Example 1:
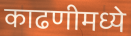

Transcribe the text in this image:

काढणीमध्ये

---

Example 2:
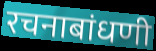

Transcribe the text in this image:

रचनाबांधणी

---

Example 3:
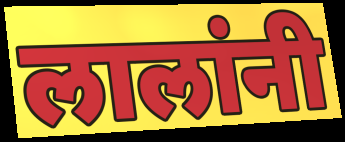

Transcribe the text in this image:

लालांनी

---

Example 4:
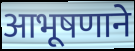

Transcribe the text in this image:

आभूषणाने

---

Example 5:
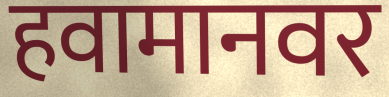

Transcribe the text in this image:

हवामानवर